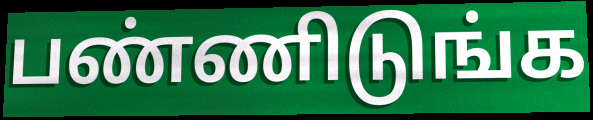
பண்ணிடுங்க